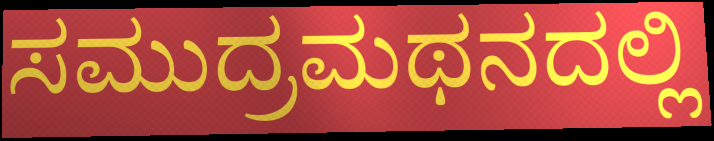
ಸಮುದ್ರಮಥನದಲ್ಲಿ